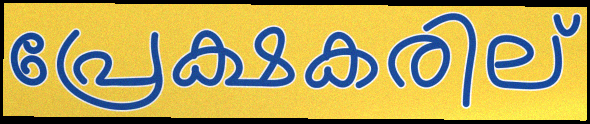
പ്രേക്ഷകരില്